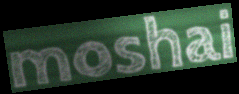
moshai